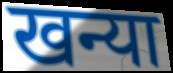
खन्या